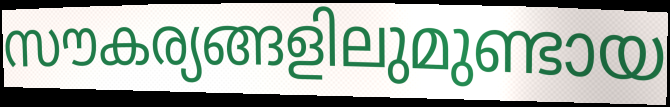
സൗകര്യങ്ങളിലുമുണ്ടായ